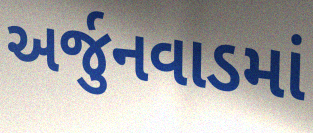
અર્જુનવાડમાં